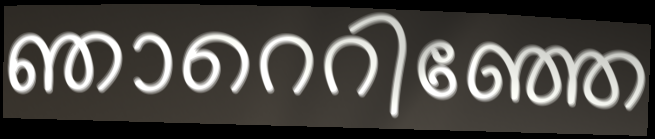
ഞാറെറിഞ്ഞേ